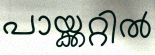
പായ്ക്കറ്റിൽ